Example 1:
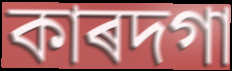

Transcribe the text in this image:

কাৰদগা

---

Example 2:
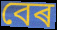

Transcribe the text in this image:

বেৰ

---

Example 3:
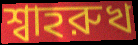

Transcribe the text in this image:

শ্বাহৰুখ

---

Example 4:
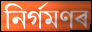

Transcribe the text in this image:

নিৰ্গমণৰ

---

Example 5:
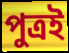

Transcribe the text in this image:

পুত্ৰই